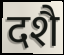
दशै